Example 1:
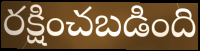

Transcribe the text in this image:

రక్షించబడింది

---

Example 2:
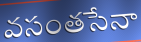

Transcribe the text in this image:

వసంతసేనా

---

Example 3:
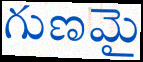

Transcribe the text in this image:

గుణమై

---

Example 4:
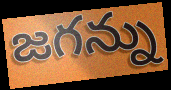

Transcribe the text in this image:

జగన్ను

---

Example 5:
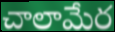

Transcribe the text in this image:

చాలామేర